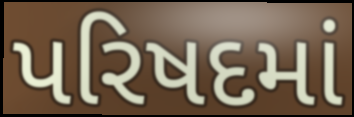
પરિષદમાં